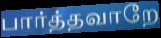
பார்த்தவாறே